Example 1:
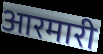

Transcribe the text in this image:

आरमारी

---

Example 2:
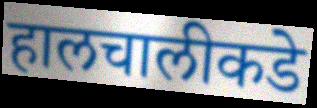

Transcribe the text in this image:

हालचालीकडे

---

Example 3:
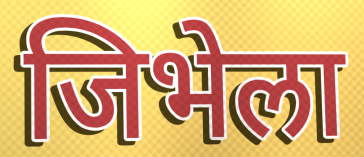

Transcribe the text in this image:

जिभेला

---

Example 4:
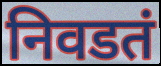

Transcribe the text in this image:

निवडतं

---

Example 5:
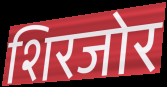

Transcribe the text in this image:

शिरजोर